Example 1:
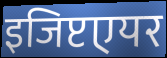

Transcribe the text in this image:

इजिप्टएयर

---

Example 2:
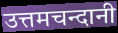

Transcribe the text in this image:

उत्तमचन्दानी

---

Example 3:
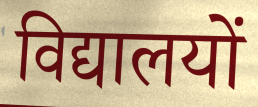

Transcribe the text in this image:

विद्यालयों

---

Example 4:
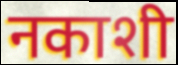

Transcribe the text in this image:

नकाशी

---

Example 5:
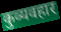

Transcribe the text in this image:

कुव्यवहार